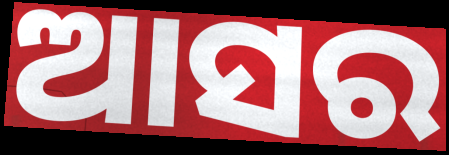
ଆସର